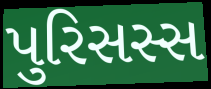
પુરિસસ્સ